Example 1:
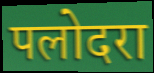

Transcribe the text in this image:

पलोदरा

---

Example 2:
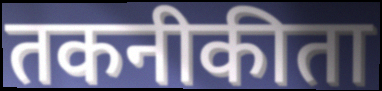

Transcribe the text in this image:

तकनीकीता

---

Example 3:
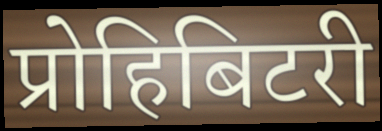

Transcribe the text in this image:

प्रोहिबिटरी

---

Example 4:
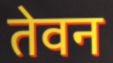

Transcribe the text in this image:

तेवन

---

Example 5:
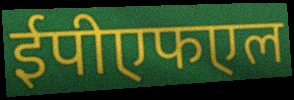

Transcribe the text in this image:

ईपीएफएल